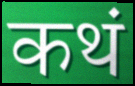
कथं